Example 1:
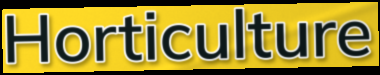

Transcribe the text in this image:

Horticulture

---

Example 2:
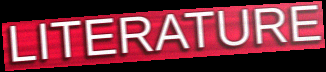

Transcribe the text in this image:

LITERATURE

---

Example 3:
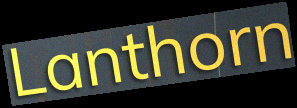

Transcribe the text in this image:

Lanthorn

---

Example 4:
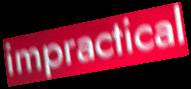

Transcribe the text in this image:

impractical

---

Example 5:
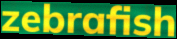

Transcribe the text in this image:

zebrafish